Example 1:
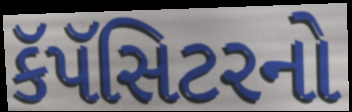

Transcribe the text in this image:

કૅપૅસિટરનો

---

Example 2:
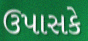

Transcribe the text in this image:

ઉપાસકે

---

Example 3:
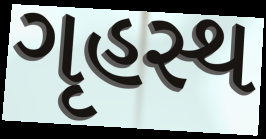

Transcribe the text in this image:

ગૃહસ્થ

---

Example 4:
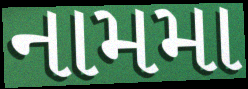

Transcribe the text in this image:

નામમા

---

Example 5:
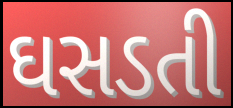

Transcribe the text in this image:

ઘસડતી